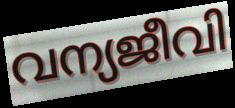
വന്യജീവി